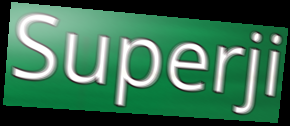
Superji